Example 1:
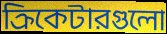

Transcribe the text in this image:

ক্রিকেটারগুলো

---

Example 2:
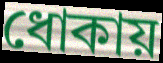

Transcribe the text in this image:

ধোকায়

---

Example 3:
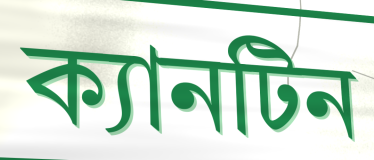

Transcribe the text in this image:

ক্যানটিন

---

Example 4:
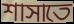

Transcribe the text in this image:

শাসাতে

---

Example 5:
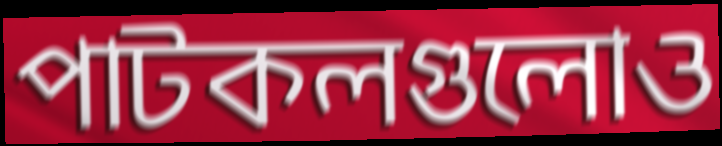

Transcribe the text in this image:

পাটকলগুলোও